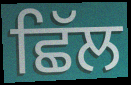
ਛਿੱਲ